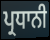
ਪ੍ਰਧਾਨੀ